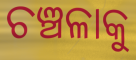
ଚଞ୍ଚଳାକୁ